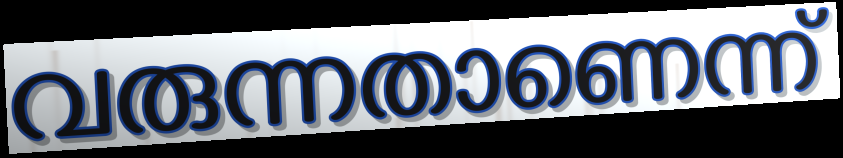
വരുന്നതാണെന്ന്